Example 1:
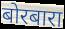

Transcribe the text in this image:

बोरबारा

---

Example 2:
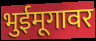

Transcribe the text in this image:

भुईमूगावर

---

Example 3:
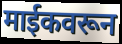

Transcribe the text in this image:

माईकवरून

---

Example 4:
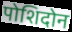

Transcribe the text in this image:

पोशिदोन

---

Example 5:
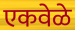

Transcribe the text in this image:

एकवेळे